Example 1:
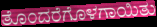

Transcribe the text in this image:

ತೊಂದರೆಗೊಳಗಾಯಿತು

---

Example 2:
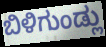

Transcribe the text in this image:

ಬಿಳಿಗುಂಡ್ಲು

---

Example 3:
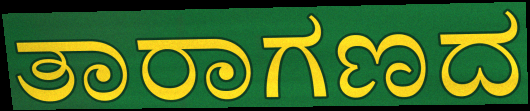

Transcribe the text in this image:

ತಾರಾಗಣದ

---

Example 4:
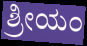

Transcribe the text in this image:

ಶ್ರೀಯಂ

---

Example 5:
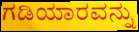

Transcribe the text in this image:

ಗಡಿಯಾರವನ್ನು